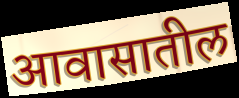
आवासातील